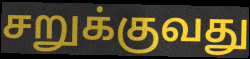
சறுக்குவது